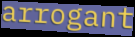
arrogant